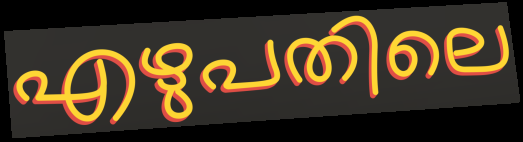
എഴുപതിലെ